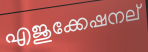
എജുക്കേഷനല്